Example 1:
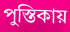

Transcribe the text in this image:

পুস্তিকায়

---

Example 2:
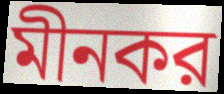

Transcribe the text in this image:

মীনকর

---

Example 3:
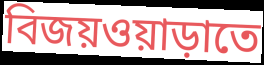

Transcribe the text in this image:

বিজয়ওয়াড়াতে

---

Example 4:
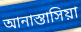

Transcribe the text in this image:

আনাস্তাসিয়া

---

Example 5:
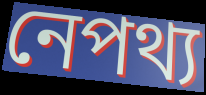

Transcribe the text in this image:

নেপথ্য